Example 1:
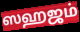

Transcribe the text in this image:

ஸஹஜம்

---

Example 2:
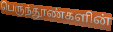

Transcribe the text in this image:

பெருந்தூண்களின்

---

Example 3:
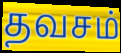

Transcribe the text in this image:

தவசம்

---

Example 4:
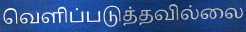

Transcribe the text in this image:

வெளிப்படுத்தவில்லை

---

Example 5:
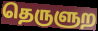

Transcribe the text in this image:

தெருளுற